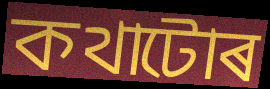
কথাটোৰ